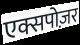
एक्सपोज़र